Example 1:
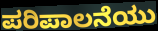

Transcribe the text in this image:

ಪರಿಪಾಲನೆಯು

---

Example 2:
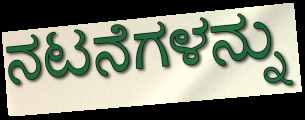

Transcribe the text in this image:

ನಟನೆಗಳನ್ನು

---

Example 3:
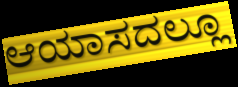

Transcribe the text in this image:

ಆಯಾಸದಲ್ಲೂ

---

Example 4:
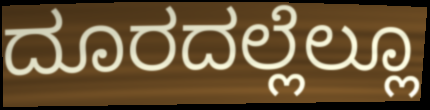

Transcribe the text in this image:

ದೂರದಲ್ಲೆಲ್ಲೂ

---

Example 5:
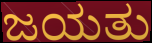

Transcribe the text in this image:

ಜಯತು